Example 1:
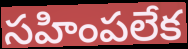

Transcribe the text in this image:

సహింపలేక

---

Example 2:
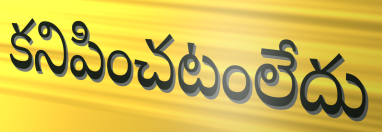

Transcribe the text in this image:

కనిపించటంలేదు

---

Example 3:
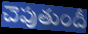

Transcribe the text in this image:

చెపుతుందీ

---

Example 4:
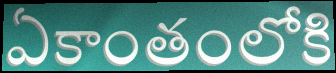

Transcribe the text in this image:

ఏకాంతంలోకి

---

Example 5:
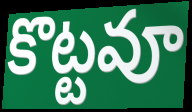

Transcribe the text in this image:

కొట్టవూ